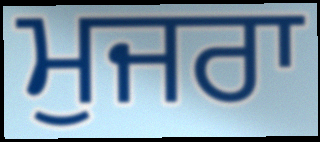
ਮੁਜਰਾ